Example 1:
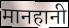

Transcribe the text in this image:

मानहानी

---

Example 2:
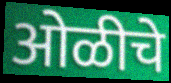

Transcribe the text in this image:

ओळीचे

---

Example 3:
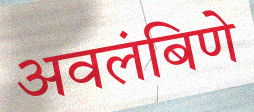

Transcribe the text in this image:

अवलंबिणे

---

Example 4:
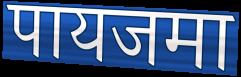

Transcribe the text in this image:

पायजमा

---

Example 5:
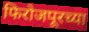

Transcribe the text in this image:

फिरोजपूरच्या